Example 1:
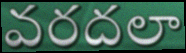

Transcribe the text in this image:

వరదలా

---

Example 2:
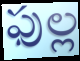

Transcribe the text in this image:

ఫుల్ల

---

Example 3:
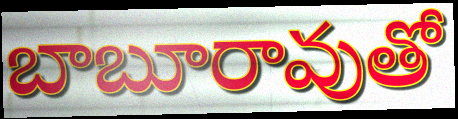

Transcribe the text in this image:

బాబూరావుతో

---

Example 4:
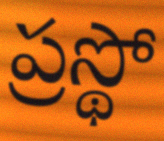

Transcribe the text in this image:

ప్రస్థో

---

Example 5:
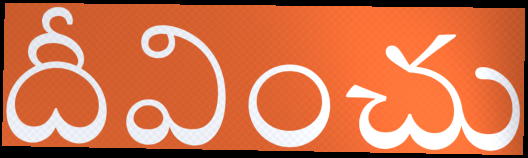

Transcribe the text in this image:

దీవించు